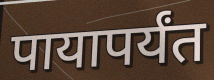
पायापर्यंत